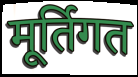
मूर्तिगत